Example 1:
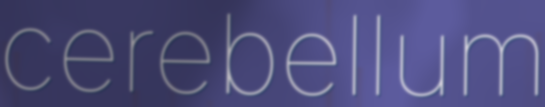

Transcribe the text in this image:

cerebellum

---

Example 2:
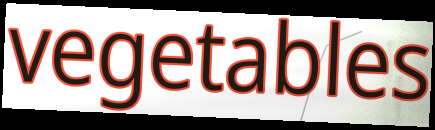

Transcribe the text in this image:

vegetables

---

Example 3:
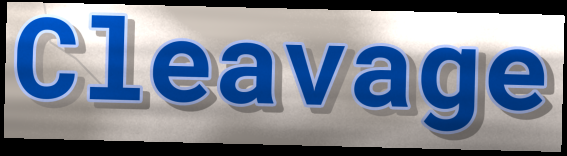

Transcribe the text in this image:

Cleavage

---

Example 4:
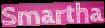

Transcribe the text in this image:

Smartha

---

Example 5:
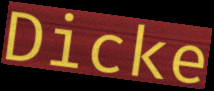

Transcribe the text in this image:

Dicke